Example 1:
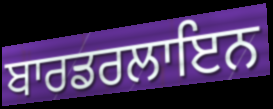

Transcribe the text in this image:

ਬਾਰਡਰਲਾਇਨ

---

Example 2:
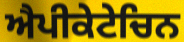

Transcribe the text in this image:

ਐਪੀਕੇਟੇਚਿਨ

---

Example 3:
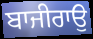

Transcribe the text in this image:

ਬਾਜੀਰਾਉ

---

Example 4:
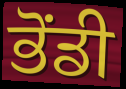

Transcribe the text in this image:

ਭੋਂਡੀ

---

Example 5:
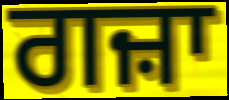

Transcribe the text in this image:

ਗਜ਼ਾ